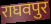
राघवपुर